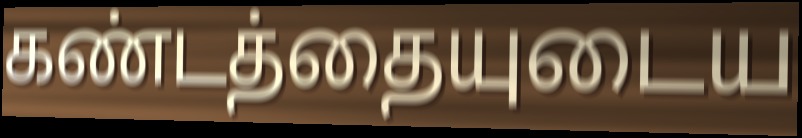
கண்டத்தையுடைய